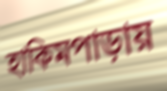
হাকিমপাড়ায়